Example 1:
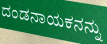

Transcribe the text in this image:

ದಂಡನಾಯಕನನ್ನು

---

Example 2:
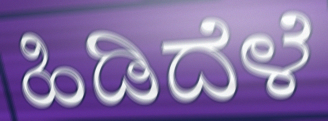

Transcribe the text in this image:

ಹಿಡಿದೆಳೆ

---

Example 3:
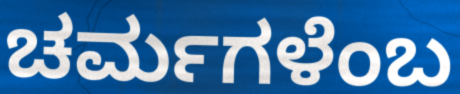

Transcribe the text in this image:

ಚರ್ಮಗಳೆಂಬ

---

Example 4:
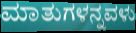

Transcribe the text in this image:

ಮಾತುಗಳನ್ನವಳು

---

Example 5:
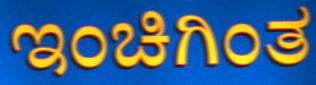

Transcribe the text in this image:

ಇಂಚಿಗಿಂತ